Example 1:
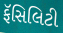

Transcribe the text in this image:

ફૅસિલિટી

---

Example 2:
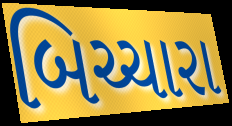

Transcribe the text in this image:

બિચ્ચારા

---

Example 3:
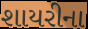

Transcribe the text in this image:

શાયરીના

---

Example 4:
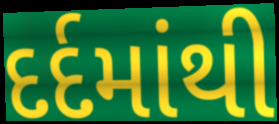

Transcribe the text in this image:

દર્દમાંથી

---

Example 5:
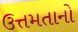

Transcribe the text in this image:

ઉત્તમતાનો